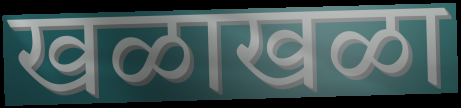
खळाखळा